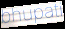
bhupati